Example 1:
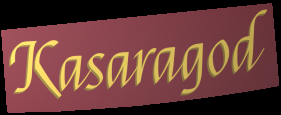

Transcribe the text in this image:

Kasaragod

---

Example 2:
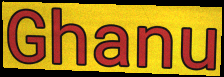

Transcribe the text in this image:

Ghanu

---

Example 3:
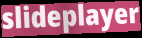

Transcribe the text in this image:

slideplayer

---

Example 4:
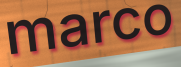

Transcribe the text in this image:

marco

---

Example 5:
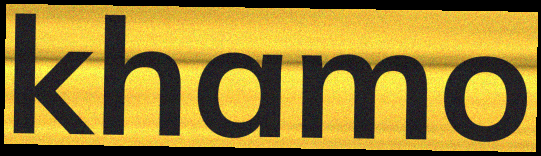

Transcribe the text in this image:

khamo